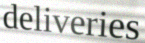
deliveries